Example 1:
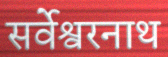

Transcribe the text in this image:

सर्वेश्वरनाथ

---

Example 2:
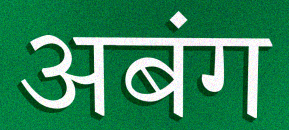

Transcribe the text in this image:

अबंग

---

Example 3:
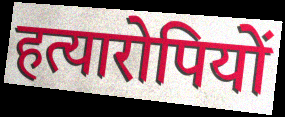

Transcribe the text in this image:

हत्‍यारोपियों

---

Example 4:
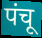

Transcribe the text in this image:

पंचू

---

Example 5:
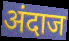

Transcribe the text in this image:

अंदाज